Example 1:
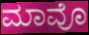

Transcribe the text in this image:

ಮಾವೊ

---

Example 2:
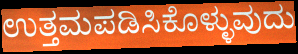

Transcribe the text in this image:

ಉತ್ತಮಪಡಿಸಿಕೊಳ್ಳುವುದು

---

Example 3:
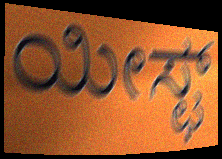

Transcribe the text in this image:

ಯೀಸ್ಟ್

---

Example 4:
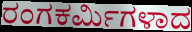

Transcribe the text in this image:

ರಂಗಕರ್ಮಿಗಳಾದ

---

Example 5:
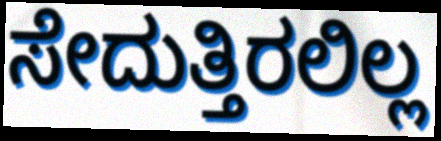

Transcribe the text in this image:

ಸೇದುತ್ತಿರಲಿಲ್ಲ